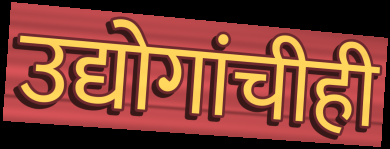
उद्योगांचीही